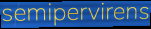
semipervirens